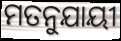
ମତନୁଯାୟୀ